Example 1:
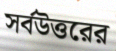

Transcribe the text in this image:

সর্বউত্তরের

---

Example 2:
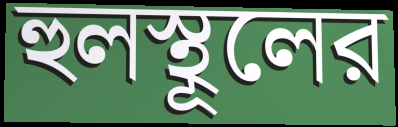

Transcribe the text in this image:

হুলস্থূলের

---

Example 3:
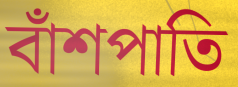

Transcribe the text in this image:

বাঁশপাতি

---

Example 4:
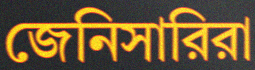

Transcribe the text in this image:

জেনিসারিরা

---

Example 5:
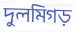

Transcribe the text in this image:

দুলমিগড়